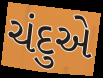
ચંદુએ